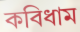
কবিধাম